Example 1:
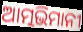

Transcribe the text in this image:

ଆତ୍ମଭିମାନୀ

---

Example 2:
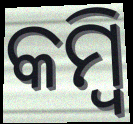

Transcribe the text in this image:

କମ୍ବି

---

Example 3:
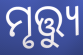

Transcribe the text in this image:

ମୃତ୍ତ୍ୟୁ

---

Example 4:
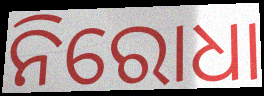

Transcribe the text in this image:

ନିରୋଧା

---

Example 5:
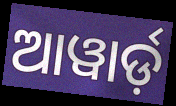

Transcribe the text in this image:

ଆୱାର୍ଡ଼